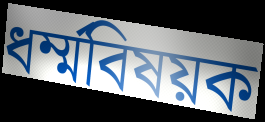
ধর্ম্মবিষয়ক